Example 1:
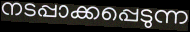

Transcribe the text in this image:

നടപ്പാക്കപ്പെടുന്ന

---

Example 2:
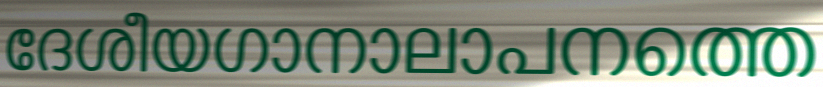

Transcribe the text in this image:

ദേശീയഗാനാലാപനത്തെ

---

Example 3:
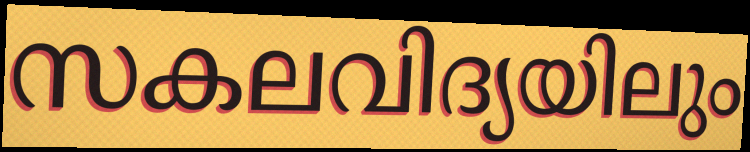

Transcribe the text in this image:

സകലവിദ്യയിലും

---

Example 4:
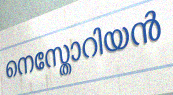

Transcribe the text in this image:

നെസ്തോറിയൻ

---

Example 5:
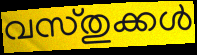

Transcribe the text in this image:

വസ്തുക്കൾ